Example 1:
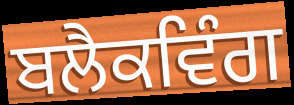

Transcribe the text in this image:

ਬਲੈਕਵਿੰਗ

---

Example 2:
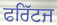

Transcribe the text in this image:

ਫਰਿੱਟਜ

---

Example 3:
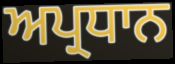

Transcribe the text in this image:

ਅਪ੍ਰਧਾਨ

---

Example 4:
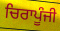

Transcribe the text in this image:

ਚਿਰਾਪੂੰਜੀ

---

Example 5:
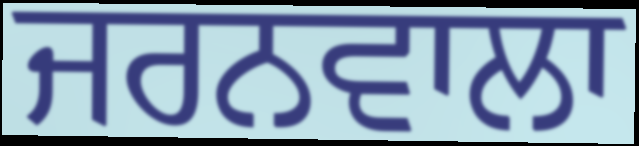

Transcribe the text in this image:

ਜਰਨਵਾਲਾ